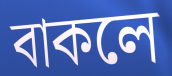
বাকলে